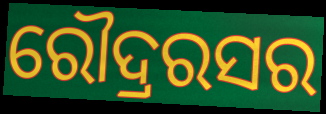
ରୌଦ୍ରରସର